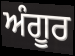
ਅੰਗੂਰ